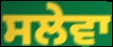
ਸਲੇਵਾ